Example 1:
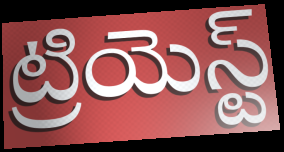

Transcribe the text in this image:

ట్రియెస్ట్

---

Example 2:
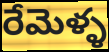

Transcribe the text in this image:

రేమెళ్ళ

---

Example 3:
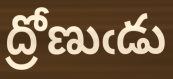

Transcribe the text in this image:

ద్రోణుఁడు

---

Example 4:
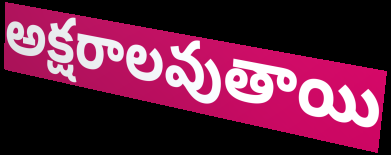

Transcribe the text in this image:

అక్షరాలవుతాయి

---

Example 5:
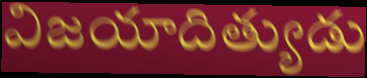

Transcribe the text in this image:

విజయాదిత్యుడు